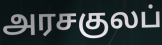
அரசகுலப்